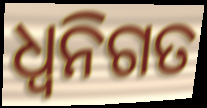
ଧ୍ଵନିଗତ